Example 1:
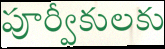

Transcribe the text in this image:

పూర్వీకులకు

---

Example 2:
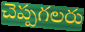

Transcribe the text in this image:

చెప్పగలరు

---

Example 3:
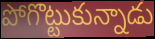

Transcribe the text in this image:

పోగొట్టుకున్నాడు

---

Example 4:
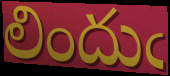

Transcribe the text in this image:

లిందుఁ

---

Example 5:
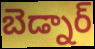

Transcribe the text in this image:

బెడ్నార్